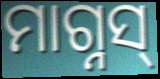
ମାଗ୍ନସ୍